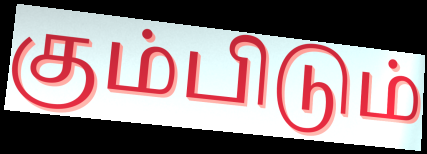
கும்பிடும்